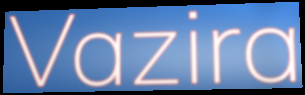
Vazira